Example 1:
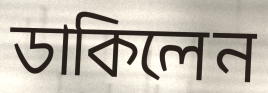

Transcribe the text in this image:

ডাকিলেন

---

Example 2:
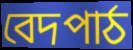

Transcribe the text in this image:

বেদপাঠ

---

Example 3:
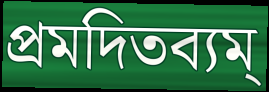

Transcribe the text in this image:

প্রমদিতব্যম্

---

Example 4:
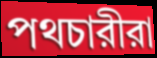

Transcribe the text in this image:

পথচারীরা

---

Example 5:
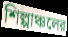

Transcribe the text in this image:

শিল্পাঞ্চলের